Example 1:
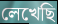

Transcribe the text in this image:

লেখেছি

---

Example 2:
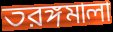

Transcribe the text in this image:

তরঙ্গমালা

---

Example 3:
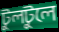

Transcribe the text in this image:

টুলটুলে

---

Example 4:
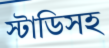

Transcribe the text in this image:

স্টাডিসহ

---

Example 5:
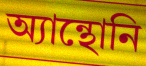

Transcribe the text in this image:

অ্যান্থোনি